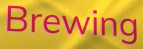
Brewing